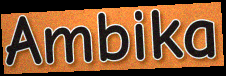
Ambika